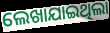
ଲେଖାଯାଇଥିଲା